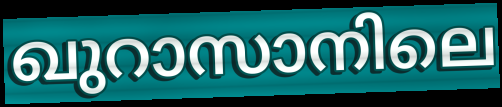
ഖുറാസാനിലെ